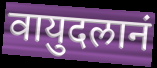
वायुदलानं